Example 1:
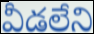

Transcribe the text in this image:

వీడలేని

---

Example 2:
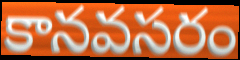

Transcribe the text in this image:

కానవసరం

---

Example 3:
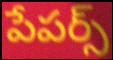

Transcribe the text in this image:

పేపర్స్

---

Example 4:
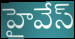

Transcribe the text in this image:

హైవేస్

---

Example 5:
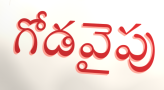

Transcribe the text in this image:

గోడవైపు